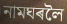
নামঘৰলৈ